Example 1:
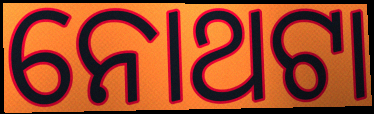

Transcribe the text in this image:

ନୋଥଟା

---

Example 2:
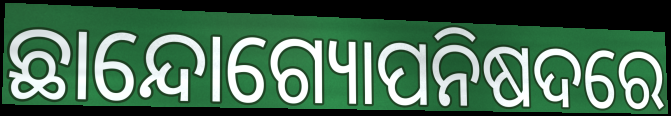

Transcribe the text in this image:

ଛାନ୍ଦୋଗ୍ୟୋପନିଷଦରେ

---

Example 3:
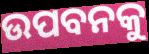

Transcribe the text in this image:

ଉପବନକୁ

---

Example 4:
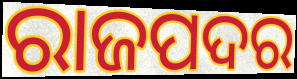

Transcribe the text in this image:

ରାଜପଦର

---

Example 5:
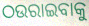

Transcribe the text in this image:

ଠଉରାଇବାକୁ